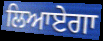
ਲਿਆਏਗਾ